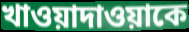
খাওয়াদাওয়াকে